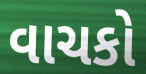
વાચકો